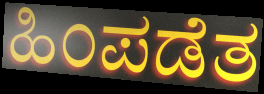
ಹಿಂಪಡೆತ